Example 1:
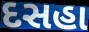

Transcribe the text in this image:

દસહા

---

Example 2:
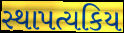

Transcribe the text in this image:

સ્થાપત્યકિય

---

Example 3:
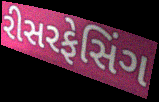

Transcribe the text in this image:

રીસરફેસિંગ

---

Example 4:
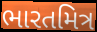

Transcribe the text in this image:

ભારતમિત્ર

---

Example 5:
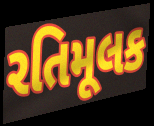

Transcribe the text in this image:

રતિમૂલક